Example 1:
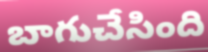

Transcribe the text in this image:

బాగుచేసింది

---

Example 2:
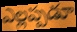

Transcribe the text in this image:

ఎల్లప్పడూ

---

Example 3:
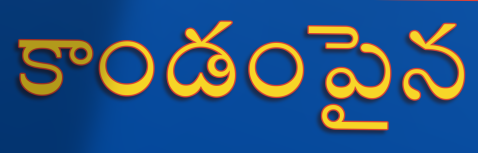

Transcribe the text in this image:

కాండంపైన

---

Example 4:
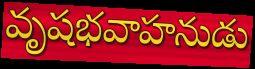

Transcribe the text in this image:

వృషభవాహనుడు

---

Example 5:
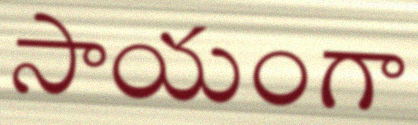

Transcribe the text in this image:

సాయంగా